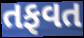
તફવત